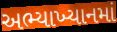
અભ્યાખ્યાનમાં